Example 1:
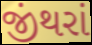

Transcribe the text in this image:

જીંથરાં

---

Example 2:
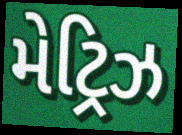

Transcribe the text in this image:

મેટ્રિઝ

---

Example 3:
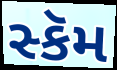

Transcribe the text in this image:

સ્કૅમ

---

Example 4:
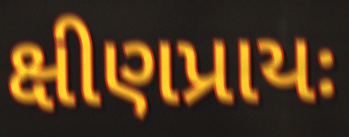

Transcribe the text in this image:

ક્ષીણપ્રાયઃ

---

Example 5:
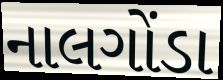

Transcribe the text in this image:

નાલગોંડા